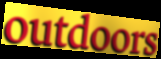
outdoors